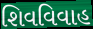
શિવવિવાહ